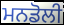
ਮਨਡੋਲੀ